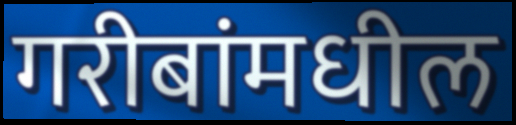
गरीबांमधील